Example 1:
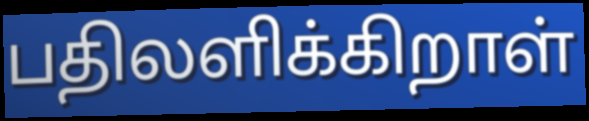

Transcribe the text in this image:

பதிலளிக்கிறாள்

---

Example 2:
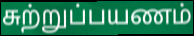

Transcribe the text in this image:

சுற்றுப்பயணம்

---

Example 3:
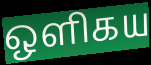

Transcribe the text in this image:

ஒளிகய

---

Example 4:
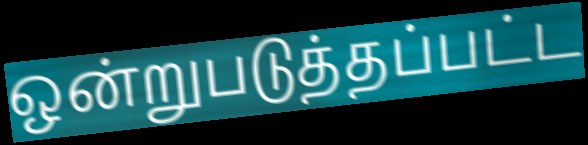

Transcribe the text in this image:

ஒன்றுபடுத்தப்பட்ட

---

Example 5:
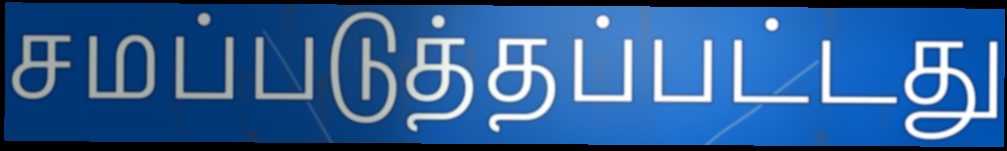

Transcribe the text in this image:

சமப்படுத்தப்பட்டது